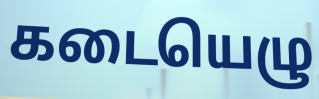
கடையெழு